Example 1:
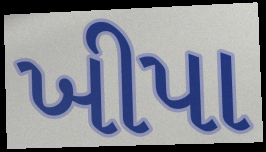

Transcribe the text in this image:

ખીપા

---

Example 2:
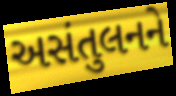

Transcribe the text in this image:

અસંતુલનને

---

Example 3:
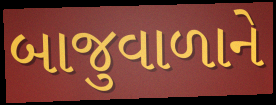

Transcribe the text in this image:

બાજુવાળાને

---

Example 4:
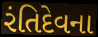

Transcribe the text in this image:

રંતિદેવના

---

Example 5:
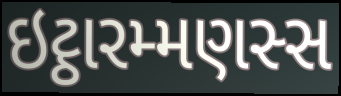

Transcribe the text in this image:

ઇટ્ઠારમ્મણસ્સ